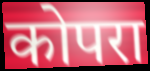
कोपरा